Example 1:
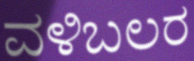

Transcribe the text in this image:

ವಳಿಬಲರ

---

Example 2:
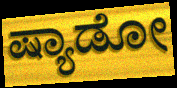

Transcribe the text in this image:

ಷ್ಯಾಡೋ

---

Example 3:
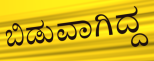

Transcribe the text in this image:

ಬಿಡುವಾಗಿದ್ದ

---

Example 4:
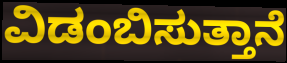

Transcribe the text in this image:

ವಿಡಂಬಿಸುತ್ತಾನೆ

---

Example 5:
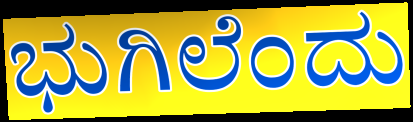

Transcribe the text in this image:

ಭುಗಿಲೆಂದು